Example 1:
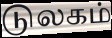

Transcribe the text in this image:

டுலகம்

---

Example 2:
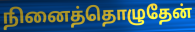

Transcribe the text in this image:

நினைத்தொழுதேன்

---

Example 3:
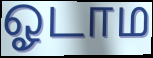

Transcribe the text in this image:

ஓடாம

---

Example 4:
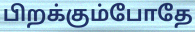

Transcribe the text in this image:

பிறக்கும்போதே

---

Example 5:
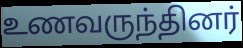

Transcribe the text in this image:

உணவருந்தினர்